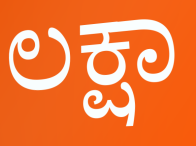
ಲಕ್ಷಾ